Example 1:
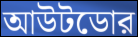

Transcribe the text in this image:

আউটডোর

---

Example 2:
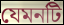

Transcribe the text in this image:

যেমনটি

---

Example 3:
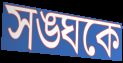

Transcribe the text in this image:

সঙ্ঘকে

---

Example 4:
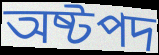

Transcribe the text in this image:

অষ্টপদ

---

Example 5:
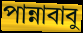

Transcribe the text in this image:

পান্নাবাবু